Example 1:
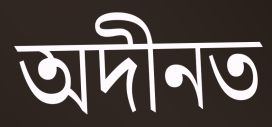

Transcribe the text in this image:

অদীনত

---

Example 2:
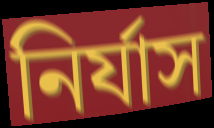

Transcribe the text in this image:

নিৰ্যাস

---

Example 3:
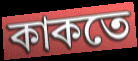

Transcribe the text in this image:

কাকতে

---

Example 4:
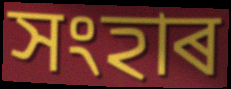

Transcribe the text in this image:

সংহাৰ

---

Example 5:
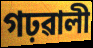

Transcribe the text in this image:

গঢ়ৱালী